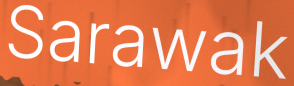
Sarawak